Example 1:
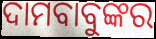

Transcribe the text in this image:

ଦାମବାବୁଙ୍କର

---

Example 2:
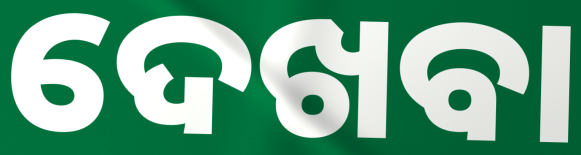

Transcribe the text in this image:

ଦେଖବା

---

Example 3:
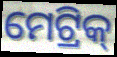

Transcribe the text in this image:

ମେଟ୍ରିକ୍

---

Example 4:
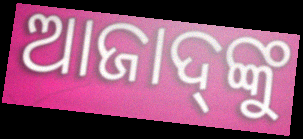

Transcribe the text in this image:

ଆଜାଦ୍‌ଙ୍କୁ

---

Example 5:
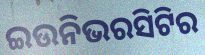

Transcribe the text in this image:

ଇଉନିଭରସିଟିର